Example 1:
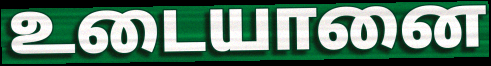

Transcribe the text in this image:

உடையானை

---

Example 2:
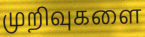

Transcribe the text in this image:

முறிவுகளை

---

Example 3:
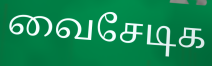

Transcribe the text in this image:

வைசேடிக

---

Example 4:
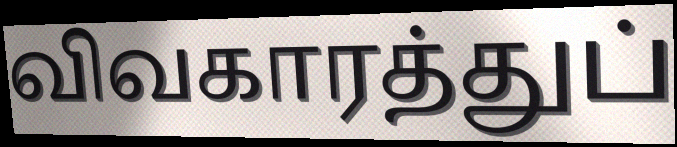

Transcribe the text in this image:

விவகாரத்துப்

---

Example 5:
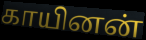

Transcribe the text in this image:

காயினன்